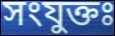
সংযুক্তঃ